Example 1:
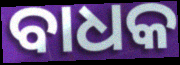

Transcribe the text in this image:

ବାଧକ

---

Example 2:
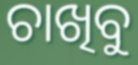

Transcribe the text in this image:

ଚାଖିବୁ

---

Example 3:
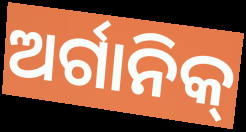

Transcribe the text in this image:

ଅର୍ଗାନିକ୍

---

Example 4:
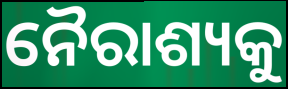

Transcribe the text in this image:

ନୈରାଶ୍ୟକୁ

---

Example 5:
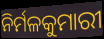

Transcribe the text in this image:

ନିର୍ମଳକୁମାରୀ